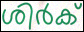
ശിർക്